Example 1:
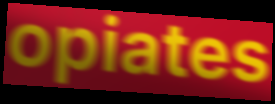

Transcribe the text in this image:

opiates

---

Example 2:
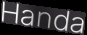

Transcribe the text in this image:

Handa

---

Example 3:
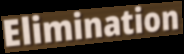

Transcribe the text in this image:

Elimination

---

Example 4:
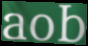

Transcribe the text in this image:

aob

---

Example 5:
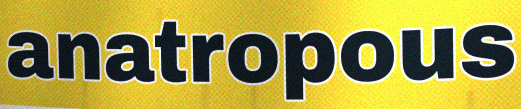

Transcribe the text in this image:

anatropous